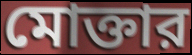
মোক্তার